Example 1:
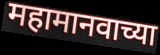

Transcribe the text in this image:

महामानवाच्या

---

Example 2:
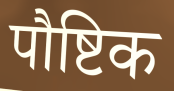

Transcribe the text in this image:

पौष्टिक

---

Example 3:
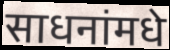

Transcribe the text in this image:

साधनांमधे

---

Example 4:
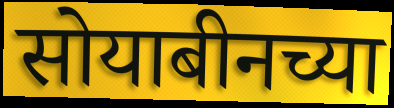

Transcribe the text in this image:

सोयाबीनच्या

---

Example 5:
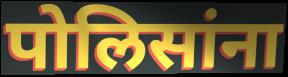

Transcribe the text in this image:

पोलिसांना